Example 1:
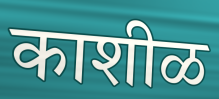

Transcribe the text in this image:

काशीळ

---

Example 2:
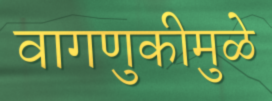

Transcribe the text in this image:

वागणुकीमुळे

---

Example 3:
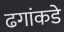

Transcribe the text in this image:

ढगांकडे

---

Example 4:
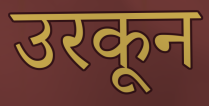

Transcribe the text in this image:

उरकून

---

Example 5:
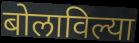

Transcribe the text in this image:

बोलाविल्या